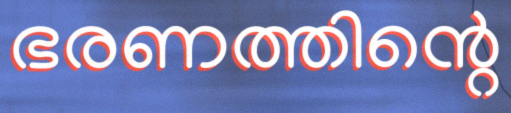
ഭരണത്തിന്റെ